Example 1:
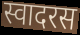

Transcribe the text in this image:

स्वादरस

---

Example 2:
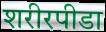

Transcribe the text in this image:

शरीरपीडा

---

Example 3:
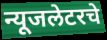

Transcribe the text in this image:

न्यूजलेटरचे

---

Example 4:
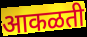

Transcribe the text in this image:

आकळती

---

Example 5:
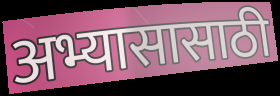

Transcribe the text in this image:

अभ्यासासाठी